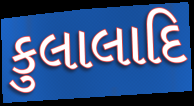
કુલાલાદિ